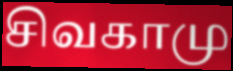
சிவகாமு